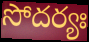
సోదర్యః